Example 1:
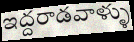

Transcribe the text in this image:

ఇద్దరాడవాళ్ళు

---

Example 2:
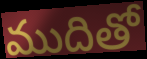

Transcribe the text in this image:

ముదితో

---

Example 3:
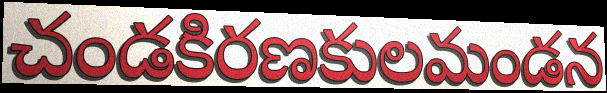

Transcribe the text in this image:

చండకిరణకులమండన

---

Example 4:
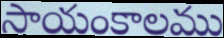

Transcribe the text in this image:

సాయంకాలము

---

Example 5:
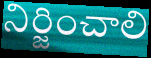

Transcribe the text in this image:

నిర్జించాలి